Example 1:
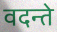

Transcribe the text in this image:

वदन्ते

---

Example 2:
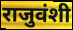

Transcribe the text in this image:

राजुवंशी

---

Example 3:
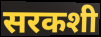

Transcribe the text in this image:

सरकशी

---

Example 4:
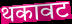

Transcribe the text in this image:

थकावट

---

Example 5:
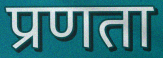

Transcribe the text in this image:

प्रणता